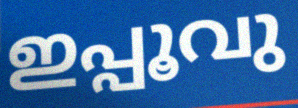
ഇപ്പൂവു